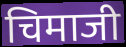
चिमाजी